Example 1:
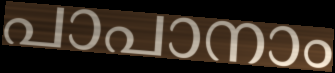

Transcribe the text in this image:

പാപാനാം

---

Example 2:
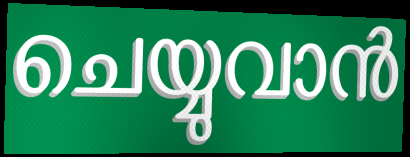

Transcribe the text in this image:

ചെയ്യുവാൻ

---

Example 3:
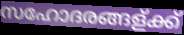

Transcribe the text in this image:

സഹോദരങ്ങള്ക്ക്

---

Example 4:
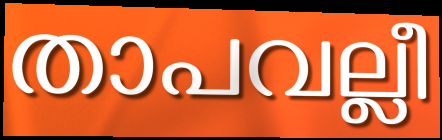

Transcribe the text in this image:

താപവല്ലീ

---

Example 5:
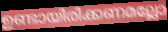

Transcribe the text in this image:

ഉണ്ടായിരിക്കണമല്ലോ